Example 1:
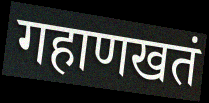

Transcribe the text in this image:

गहाणखतं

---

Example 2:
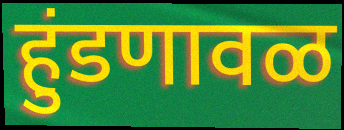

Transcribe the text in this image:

हुंडणावळ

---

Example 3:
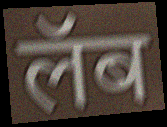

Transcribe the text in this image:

लॅब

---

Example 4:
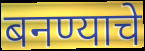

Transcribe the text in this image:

बनण्याचे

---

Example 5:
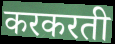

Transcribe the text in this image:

करकरती